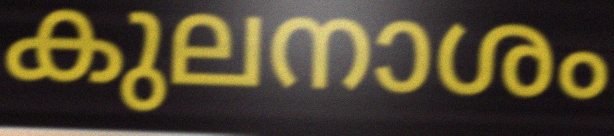
കുലനാശം